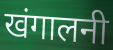
खंगालनी